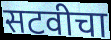
सटवीचा